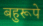
बहुरूपे